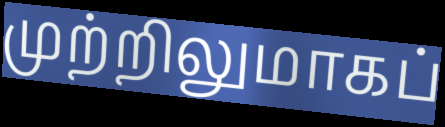
முற்றிலுமாகப்